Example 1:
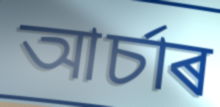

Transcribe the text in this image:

আৰ্চাৰ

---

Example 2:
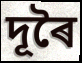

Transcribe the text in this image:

দূৰৈ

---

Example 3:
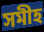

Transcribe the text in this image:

সমীহ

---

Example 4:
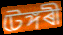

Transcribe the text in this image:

টেঙ্গৰী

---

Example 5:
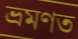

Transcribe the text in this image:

ভ্ৰমণত